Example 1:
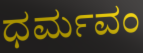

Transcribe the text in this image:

ಧರ್ಮವಂ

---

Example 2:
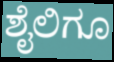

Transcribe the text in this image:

ಶೈಲಿಗೂ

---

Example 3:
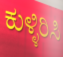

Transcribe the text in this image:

ಕುಳ್ಳಿರಿಸಿ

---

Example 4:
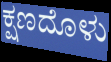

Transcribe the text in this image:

ಕ್ಷಣದೊಳು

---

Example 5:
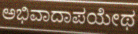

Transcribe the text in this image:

ಅಭಿವಾದಾಪಯೇಥ